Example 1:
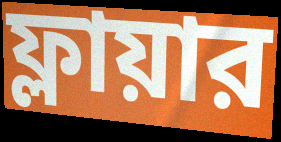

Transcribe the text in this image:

ফ্লায়ার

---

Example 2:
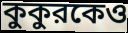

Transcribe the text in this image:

কুকুরকেও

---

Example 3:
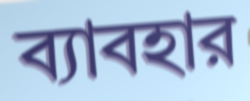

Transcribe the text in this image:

ব্যাবহার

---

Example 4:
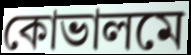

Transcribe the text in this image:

কোভালমে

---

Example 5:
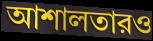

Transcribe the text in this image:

আশালতারও